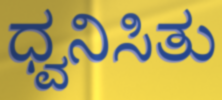
ಧ್ವನಿಸಿತು